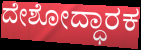
ದೇಶೋದ್ಧಾರಕ